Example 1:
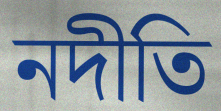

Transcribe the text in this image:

নদীতি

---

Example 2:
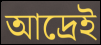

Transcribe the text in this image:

আদ্রেই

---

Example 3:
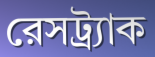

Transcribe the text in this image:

রেসট্র্যাক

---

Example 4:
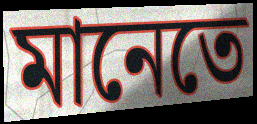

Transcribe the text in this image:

মানেতে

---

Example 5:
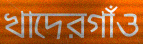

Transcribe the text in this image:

খাদেরগাঁও